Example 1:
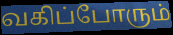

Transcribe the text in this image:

வகிப்போரும்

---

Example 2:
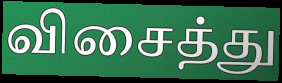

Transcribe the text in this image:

விசைத்து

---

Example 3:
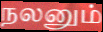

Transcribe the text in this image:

நலனும்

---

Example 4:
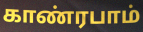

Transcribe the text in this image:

காண்ரபாம்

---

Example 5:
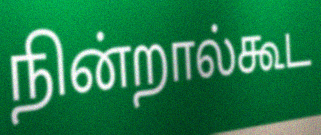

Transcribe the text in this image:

நின்றால்கூட